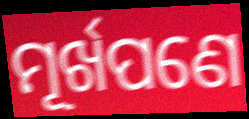
ମୂର୍ଖପଣେ